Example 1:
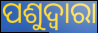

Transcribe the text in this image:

ପଶୁଦ୍ୱାରା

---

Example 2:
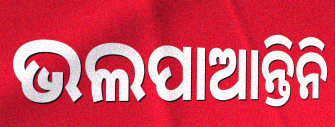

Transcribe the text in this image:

ଭଲପାଆନ୍ତିନି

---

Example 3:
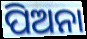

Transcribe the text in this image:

ପିଅନା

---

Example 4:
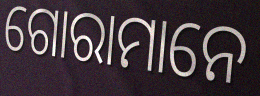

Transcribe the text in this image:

ଗୋରାମାନେ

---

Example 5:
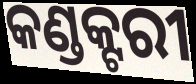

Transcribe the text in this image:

କଣ୍ଡକ୍ଟରୀ